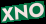
XNO